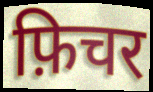
फ़िचर